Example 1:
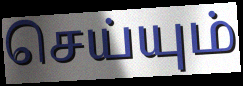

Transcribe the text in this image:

செய்யும்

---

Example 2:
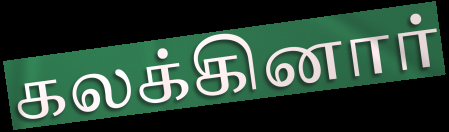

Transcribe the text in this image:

கலக்கினார்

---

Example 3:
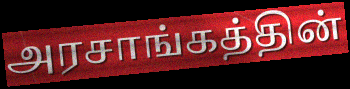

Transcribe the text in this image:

அரசாங்கத்தின்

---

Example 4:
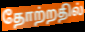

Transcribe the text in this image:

தோற்றதில்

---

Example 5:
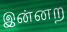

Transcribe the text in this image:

இன்னற